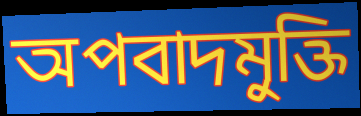
অপবাদমুক্তি